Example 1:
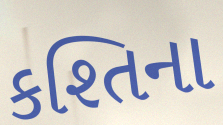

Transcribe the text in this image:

કશ્તિના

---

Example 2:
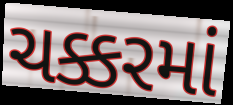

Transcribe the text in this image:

ચક્કરમાં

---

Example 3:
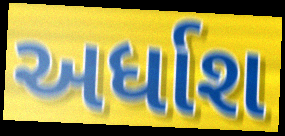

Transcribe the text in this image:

અર્ધાશ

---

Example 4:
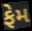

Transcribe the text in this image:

ફેમ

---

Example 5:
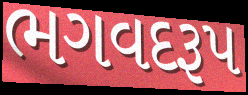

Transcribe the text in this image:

ભગવદરૂપ